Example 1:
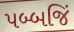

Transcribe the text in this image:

પબ્બજિં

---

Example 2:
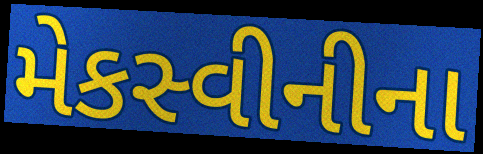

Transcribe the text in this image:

મેકસ્વીનીના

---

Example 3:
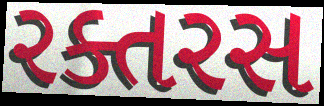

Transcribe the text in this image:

રક્તરસ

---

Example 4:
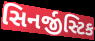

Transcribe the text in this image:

સિનર્જીસ્ટિક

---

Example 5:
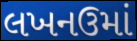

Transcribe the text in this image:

લખનઉમાં